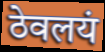
ठेवलयं